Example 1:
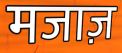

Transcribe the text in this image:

मजाज़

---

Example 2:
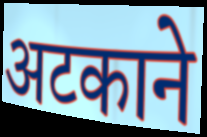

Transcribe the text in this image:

अटकाने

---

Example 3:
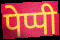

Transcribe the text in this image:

पेप्पी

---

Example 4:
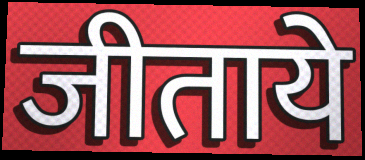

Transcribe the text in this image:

जीताये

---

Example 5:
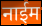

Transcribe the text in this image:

नाईम